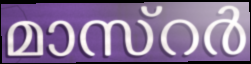
മാസ്റർ